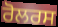
ਰੋਲਰਸ